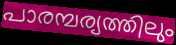
പാരമ്പര്യത്തിലും